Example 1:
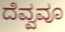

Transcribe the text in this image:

ದೆವ್ವವೂ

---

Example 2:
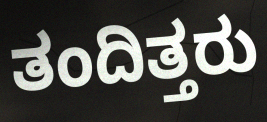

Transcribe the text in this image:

ತಂದಿತ್ತರು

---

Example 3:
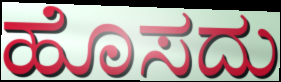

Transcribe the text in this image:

ಹೊಸದು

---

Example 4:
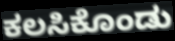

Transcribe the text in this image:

ಕಲಸಿಕೊಂಡು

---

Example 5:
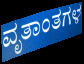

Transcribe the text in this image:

ವೃತಾಂತಗಳ